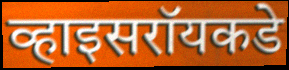
व्हाइसरॉयकडे